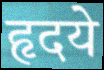
हृदये